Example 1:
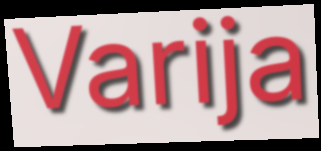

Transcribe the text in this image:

Varija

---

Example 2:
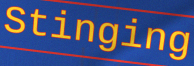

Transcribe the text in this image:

Stinging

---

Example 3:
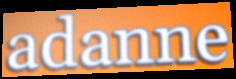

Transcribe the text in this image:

adanne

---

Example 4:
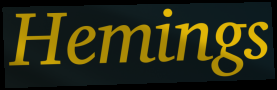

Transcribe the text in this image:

Hemings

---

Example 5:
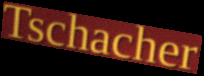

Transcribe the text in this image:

Tschacher